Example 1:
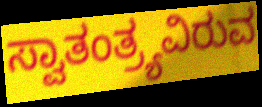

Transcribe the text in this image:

ಸ್ವಾತಂತ್ರ್ಯವಿರುವ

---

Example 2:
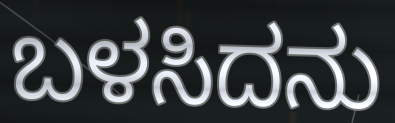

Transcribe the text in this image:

ಬಳಸಿದನು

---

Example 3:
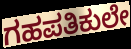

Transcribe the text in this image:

ಗಹಪತಿಕುಲೇ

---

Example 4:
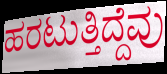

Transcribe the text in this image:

ಹರಟುತ್ತಿದ್ದೆವು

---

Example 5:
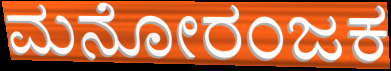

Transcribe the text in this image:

ಮನೋರಂಜಕ